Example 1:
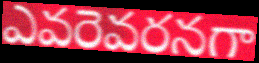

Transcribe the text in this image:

ఎవరెవరనగా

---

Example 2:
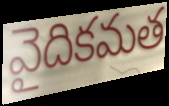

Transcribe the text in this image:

వైదికమత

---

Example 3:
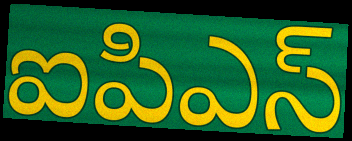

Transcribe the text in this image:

ఐపిఎస్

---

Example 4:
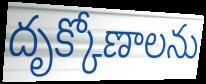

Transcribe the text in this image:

దృక్కోణాలను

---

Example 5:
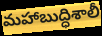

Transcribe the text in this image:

మహాబుద్ధిశాలీ